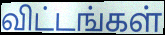
விட்டங்கள்